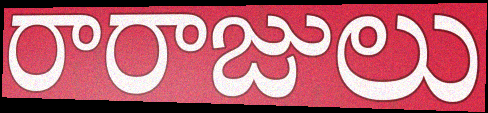
రారాజులు